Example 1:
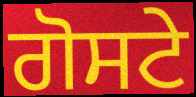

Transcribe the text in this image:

ਗੋਸਟੇ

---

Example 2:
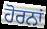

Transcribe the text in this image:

ਹੋਰਨਾਂ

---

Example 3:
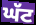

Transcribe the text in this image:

ਘੱਟ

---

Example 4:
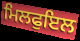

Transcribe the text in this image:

ਮਿਲਫੁਇਲ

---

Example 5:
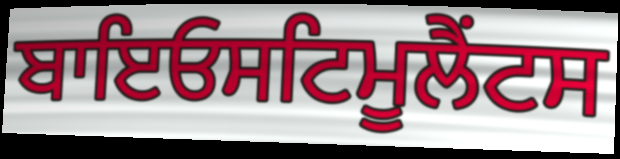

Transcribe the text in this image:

ਬਾਇਓਸਟਿਮੂਲੈਂਟਸ